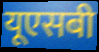
यूएसबी